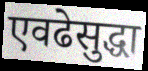
एवढेसुद्धा